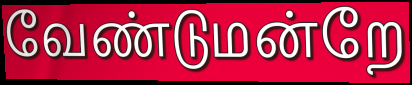
வேண்டுமன்றே